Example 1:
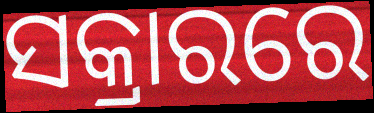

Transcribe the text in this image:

ସକ୍ରାରରେ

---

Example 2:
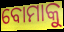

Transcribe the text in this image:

ବୋମାକୁ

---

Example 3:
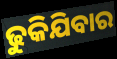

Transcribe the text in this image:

ଢୁକିଯିବାର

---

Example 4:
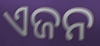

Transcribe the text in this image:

ଏଜନ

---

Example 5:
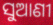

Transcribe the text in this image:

ସୁଆଣୀ